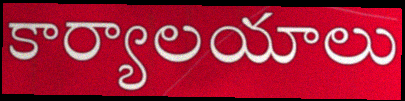
కార్యాలయాలు